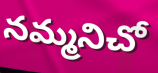
నమ్మనిచో